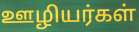
ஊழியர்கள்